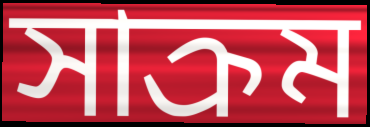
সাক্রম